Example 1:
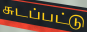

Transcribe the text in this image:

சுடப்பட்டு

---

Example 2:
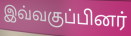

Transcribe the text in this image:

இவ்வகுப்பினர்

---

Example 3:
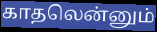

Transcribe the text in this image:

காதலென்னும்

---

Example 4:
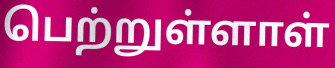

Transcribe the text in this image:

பெற்றுள்ளாள்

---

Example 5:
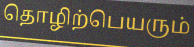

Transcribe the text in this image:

தொழிற்பெயரும்